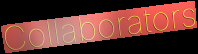
Collaborators